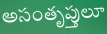
అసంతృప్తులూ